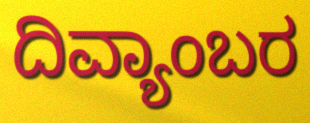
ದಿವ್ಯಾಂಬರ